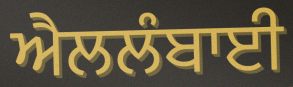
ਐਲਲੰਬਾਈ